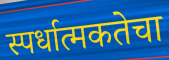
स्पर्धात्मकतेचा